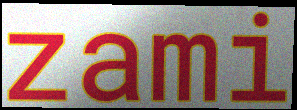
zami